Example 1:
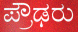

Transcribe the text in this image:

ಪ್ರೌಢರು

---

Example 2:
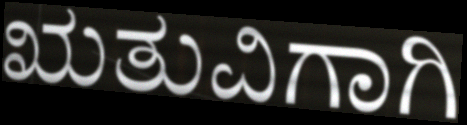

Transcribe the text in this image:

ಋತುವಿಗಾಗಿ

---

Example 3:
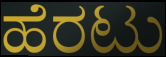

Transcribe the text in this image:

ಹೆರಟು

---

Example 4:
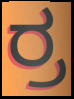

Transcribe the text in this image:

ರ್ರ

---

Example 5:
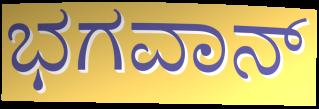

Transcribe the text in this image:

ಭಗವಾನ್